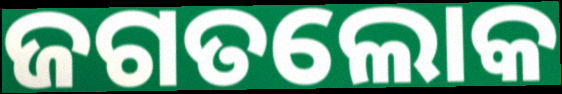
ଜଗତଲୋକ